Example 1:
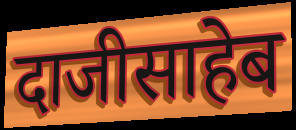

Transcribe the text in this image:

दाजीसाहेब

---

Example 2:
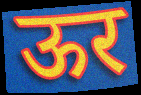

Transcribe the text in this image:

ऊर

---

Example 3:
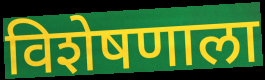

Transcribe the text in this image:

विशेषणाला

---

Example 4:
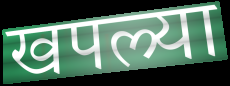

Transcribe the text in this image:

खपल्या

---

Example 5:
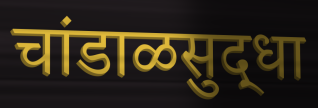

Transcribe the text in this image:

चांडाळसुद्धा